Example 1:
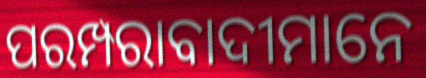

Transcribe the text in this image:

ପରମ୍ପରାବାଦୀମାନେ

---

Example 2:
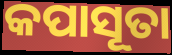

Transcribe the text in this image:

କପାସୂତା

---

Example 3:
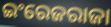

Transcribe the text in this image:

ଇଂରେଜରାଜା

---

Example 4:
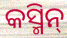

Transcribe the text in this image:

କସ୍ମିନ୍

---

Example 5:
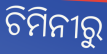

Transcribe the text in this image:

ଚିମିନୀରୁ